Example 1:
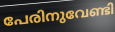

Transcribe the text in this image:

പേരിനുവേണ്ടി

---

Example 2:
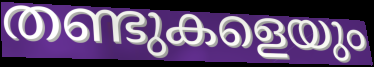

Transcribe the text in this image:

തണ്ടുകളെയും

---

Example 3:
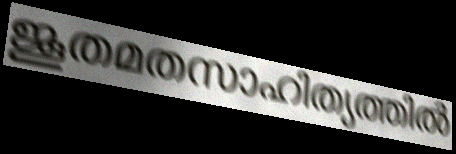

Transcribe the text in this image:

ജൂതമതസാഹിത്യത്തിൽ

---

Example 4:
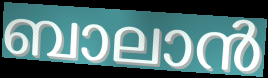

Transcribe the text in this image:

ബാലാൻ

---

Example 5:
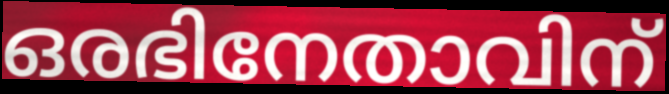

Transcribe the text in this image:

ഒരഭിനേതാവിന്